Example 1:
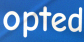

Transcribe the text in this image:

opted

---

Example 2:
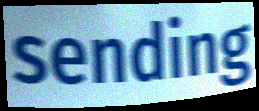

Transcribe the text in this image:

sending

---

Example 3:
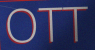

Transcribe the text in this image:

OTT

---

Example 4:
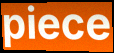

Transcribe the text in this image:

piece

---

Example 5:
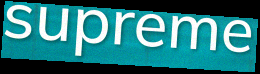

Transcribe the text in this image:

supreme